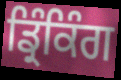
ਡ੍ਰਿੰਕਿੰਗ